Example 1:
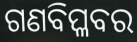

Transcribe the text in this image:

ଗଣବିପ୍ଳବର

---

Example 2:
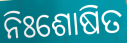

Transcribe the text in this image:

ନିଃଶୋଷିତ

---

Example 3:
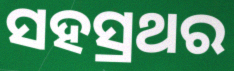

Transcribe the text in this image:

ସହସ୍ରଥର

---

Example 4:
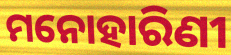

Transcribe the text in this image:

ମନୋହାରିଣୀ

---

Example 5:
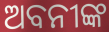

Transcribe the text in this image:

ଅବନୀଙ୍କ